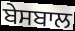
ਬੇਸਬਾਲ